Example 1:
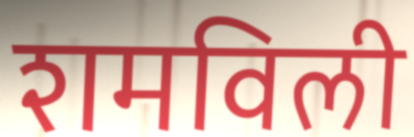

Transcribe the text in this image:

शमविली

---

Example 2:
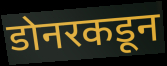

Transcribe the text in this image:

डोनरकडून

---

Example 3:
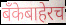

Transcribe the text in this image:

बँकेबाहेरच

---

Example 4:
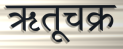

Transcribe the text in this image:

ऋतूचक्र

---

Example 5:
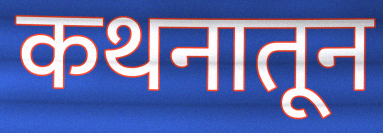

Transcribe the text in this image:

कथनातून